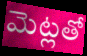
మెట్లతో